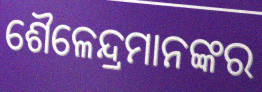
ଶୈଳେନ୍ଦ୍ରମାନଙ୍କର